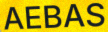
AEBAS